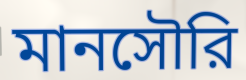
মানসৌরি